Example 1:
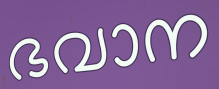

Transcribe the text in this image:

ഭവാന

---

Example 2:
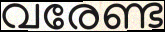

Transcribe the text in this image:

വരേണ്ട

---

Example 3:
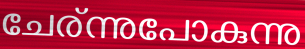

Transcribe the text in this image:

ചേര്ന്നുപോകുന്നു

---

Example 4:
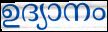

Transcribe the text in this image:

ഉദ്യാനം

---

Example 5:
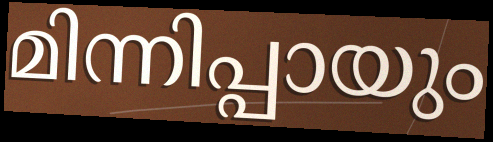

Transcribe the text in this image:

മിന്നിപ്പായും